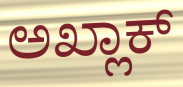
ಅಖ್ಲಾಕ್